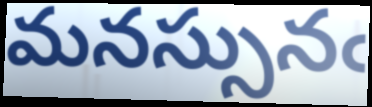
మనస్సునఁ